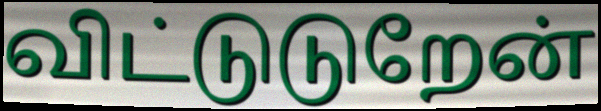
விட்டுடுறேன்